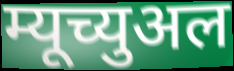
म्यूच्युअल